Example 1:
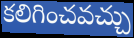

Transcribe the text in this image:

కలిగించవచ్చు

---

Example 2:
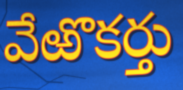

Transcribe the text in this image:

వేఱొకర్తు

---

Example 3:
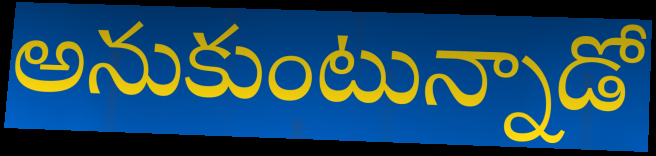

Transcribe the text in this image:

అనుకుంటున్నాడో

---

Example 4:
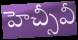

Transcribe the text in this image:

హెచ్సీవీ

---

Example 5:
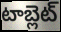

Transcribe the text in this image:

టాబ్లెట్